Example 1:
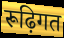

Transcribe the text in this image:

रूढ़िगत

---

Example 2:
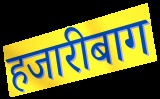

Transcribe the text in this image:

हजारीबाग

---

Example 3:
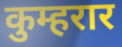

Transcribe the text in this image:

कुम्हरार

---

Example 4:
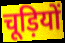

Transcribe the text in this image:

चूड़ियों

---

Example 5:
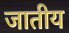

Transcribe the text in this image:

जातीय